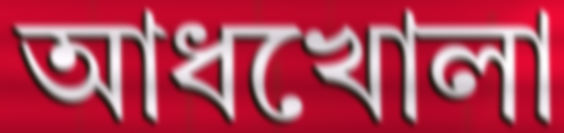
আধখোলা